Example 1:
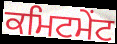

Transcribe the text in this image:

ਕਮਿਟਮੇਂਟ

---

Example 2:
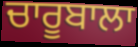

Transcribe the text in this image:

ਚਾਰੂਬਾਲਾ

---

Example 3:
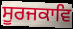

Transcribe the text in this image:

ਸੂਰਜਕਾਵਿ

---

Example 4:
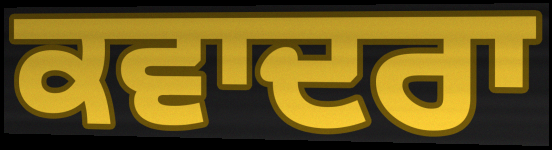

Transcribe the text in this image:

ਕਵਾਦਰਾ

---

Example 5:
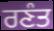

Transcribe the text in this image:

ਰਣੰਤ